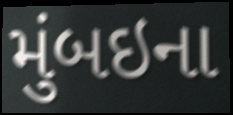
મુંબઇના